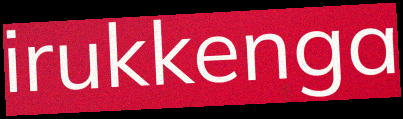
irukkenga